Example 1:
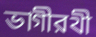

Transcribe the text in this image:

ভাগীরথী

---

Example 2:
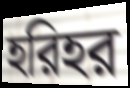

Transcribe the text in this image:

হরিহর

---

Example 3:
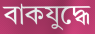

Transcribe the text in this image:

বাকযুদ্ধে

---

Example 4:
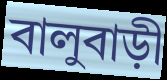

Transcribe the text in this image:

বালুবাড়ী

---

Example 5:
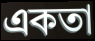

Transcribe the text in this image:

একতা